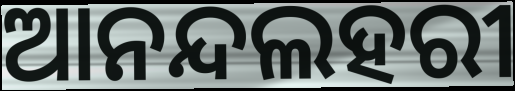
ଆନନ୍ଦଲହରୀ